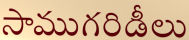
సాముగరిడీలు